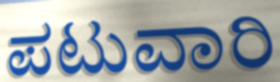
ಪಟುವಾರಿ